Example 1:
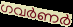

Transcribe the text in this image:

ഗവർണർ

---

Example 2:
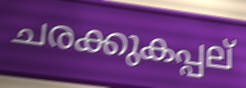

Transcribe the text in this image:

ചരക്കുകപ്പല്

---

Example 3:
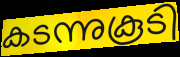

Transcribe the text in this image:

കടന്നുകൂടി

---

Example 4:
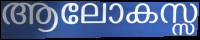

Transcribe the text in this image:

ആലോകസ്സ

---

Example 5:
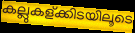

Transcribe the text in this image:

കല്ലുകള്ക്കിടയിലൂടെ